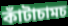
কাঁটাচামচ